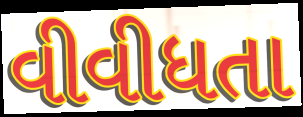
વીવીધતા